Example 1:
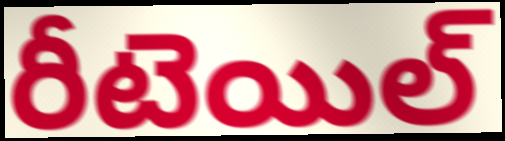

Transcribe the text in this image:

రీటెయిల్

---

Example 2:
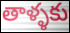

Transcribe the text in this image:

తాళ్ళకు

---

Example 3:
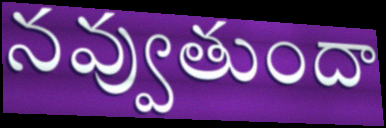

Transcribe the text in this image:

నవ్వుతుందా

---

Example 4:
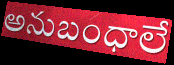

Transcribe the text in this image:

అనుబంధాలే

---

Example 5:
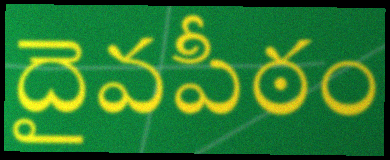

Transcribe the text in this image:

దైవపీఠం